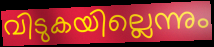
വിടുകയില്ലെന്നും